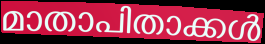
മാതാപിതാക്കൾ